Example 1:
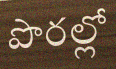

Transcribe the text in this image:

పొరల్లో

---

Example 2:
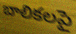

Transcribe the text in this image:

బాలికలపై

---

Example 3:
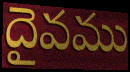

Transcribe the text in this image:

దైవము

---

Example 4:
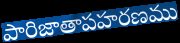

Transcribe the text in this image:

పారిజాతాపహరణము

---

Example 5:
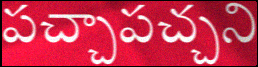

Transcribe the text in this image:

పచ్చాపచ్చని